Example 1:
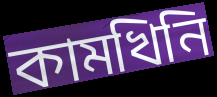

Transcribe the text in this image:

কামখিনি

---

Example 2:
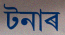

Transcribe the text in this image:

টনাৰ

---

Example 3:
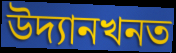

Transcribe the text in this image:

উদ্যানখনত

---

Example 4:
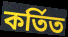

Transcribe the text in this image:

কৰ্তিত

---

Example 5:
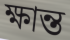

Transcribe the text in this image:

ক্ষান্ত